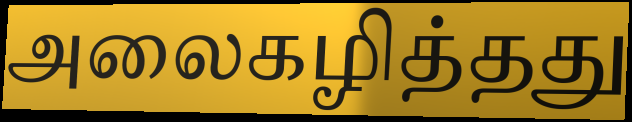
அலைகழித்தது